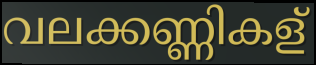
വലക്കണ്ണികള്